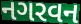
નગરવન